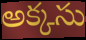
అక్కసు